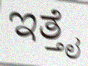
ಇತ್ತೈ